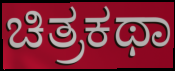
ಚಿತ್ರಕಥಾ